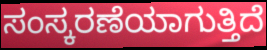
ಸಂಸ್ಕರಣೆಯಾಗುತ್ತಿದೆ